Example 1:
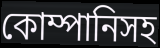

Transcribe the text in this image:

কোম্পানিসহ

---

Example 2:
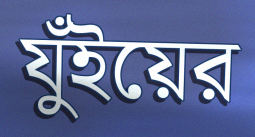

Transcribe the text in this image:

যুঁইয়ের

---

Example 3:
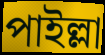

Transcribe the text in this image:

পাইল্লা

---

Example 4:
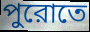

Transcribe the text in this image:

পুরোতে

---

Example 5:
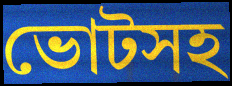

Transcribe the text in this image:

ভোটসহ